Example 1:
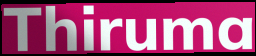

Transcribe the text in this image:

Thiruma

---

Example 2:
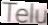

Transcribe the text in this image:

Telu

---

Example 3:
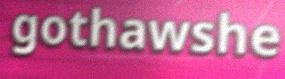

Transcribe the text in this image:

gothawshe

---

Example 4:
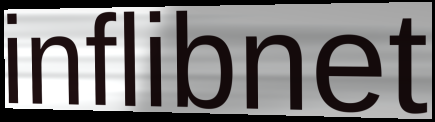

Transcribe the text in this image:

inflibnet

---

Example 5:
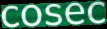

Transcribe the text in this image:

cosec